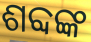
ଶବ୍ଦଙ୍କ